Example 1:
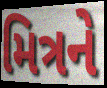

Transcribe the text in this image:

મિત્રને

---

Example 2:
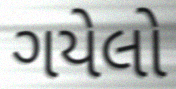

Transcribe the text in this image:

ગયેલો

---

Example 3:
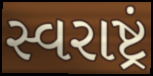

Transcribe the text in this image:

સ્વરાષ્ટ્રં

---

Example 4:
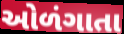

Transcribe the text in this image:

ઓળંગાતા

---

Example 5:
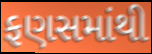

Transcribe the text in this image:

ફણસમાંથી